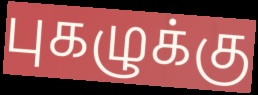
புகழுக்கு